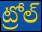
ట్రోల్